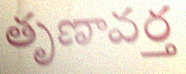
తృణావర్త